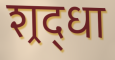
श्रद्धा